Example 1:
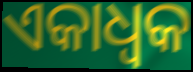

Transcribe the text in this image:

ଏକାଧ୍ଵକ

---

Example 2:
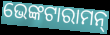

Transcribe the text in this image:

ଭେଙ୍କଟାରାମନ୍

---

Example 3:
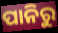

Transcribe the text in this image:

ପାନିରୁ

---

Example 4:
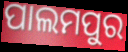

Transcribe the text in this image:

ପାଲମପୁର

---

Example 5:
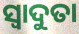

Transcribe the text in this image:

ସ୍ୱାଦୁତା